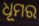
ଧୂମର